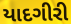
યાદગીરી